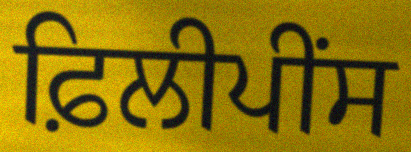
ਫ਼ਿਲੀਪੀਂਸ